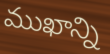
ముఖాన్ని